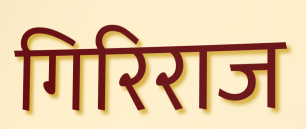
गिरिराज